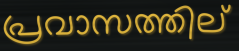
പ്രവാസത്തില്